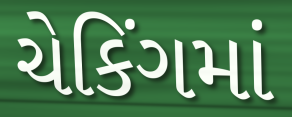
ચેકિંગમાં